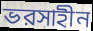
ভরসাহীন